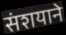
संशयाने